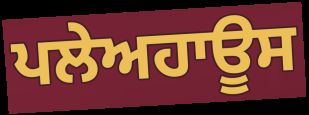
ਪਲੇਅਹਾਊਸ